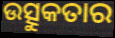
ଉତ୍ସୁକତାର